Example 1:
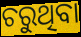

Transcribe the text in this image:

ଚରୁଥିବା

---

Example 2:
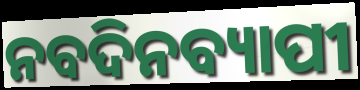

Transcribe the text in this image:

ନବଦିନବ୍ୟାପୀ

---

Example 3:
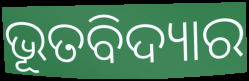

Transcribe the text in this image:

ଭୂତବିଦ୍ୟାର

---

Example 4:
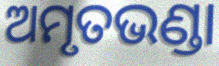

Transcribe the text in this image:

ଅମୃତଭଣ୍ଡା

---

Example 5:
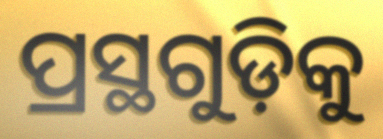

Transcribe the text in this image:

ପ୍ରସ୍ଥଗୁଡ଼ିକୁ